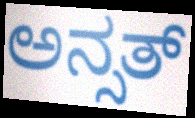
ಅನ್ಸತ್